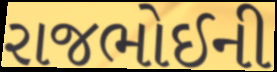
રાજભોઈની